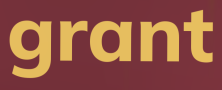
grant